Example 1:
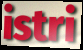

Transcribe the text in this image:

istri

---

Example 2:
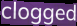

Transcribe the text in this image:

clogged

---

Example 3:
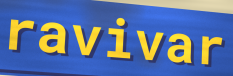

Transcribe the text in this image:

ravivar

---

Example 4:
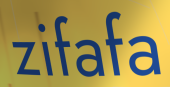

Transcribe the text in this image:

zifafa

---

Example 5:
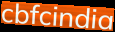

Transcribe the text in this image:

cbfcindia